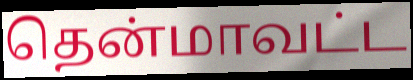
தென்மாவட்ட